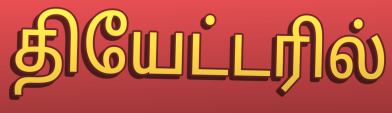
தியேட்டரில்